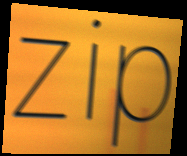
zip